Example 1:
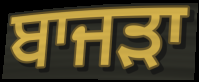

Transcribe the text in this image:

ਬਾਜਡ਼ਾ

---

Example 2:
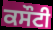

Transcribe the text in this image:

ਕਸੌਟੀ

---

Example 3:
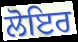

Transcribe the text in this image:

ਲੋਇਰ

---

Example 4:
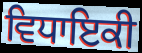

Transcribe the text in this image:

ਵਿਧਾਇਕੀ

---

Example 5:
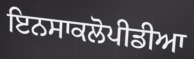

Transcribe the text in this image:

ਇਨਸਾਕਲੋਪੀਡੀਆ